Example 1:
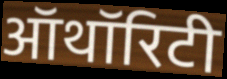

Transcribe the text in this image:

ऑथॉरिटी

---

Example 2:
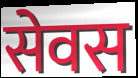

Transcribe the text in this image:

सेवस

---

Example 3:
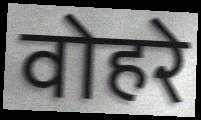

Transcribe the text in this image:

वोहरे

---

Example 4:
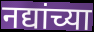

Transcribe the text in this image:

नद्यांच्या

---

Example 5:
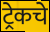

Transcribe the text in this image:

ट्रेकचे